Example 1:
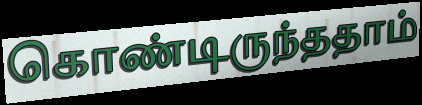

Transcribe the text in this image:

கொண்டிருந்ததாம்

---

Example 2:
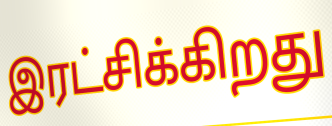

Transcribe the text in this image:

இரட்சிக்கிறது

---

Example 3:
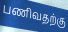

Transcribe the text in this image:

பணிவதற்கு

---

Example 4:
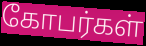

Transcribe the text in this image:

கோபர்கள்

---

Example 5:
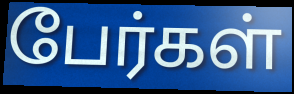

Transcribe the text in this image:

பேர்கள்